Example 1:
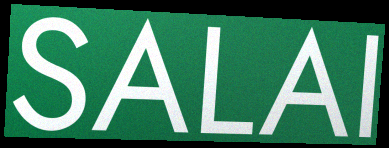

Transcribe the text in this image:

SALAI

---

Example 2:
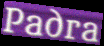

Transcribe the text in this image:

Padra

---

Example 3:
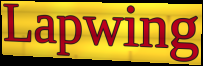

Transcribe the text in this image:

Lapwing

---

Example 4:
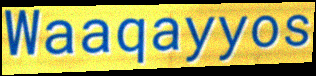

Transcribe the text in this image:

Waaqayyos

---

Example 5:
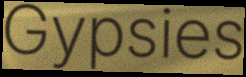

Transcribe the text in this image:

Gypsies